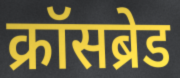
क्रॉसब्रेड